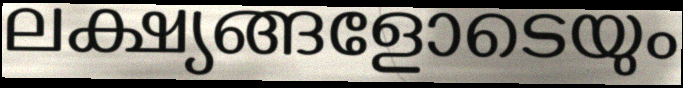
ലക്ഷ്യങ്ങളോടെയും